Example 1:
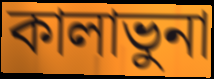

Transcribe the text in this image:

কালাভুনা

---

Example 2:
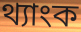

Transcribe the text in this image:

থ্যাংক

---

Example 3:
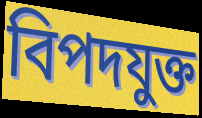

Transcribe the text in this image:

বিপদযুক্ত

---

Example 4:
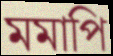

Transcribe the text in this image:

মমাপি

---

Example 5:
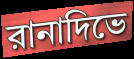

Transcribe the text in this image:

রানাদিভে